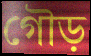
গৌড়